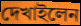
দেখাইলেন